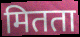
मितता